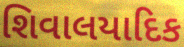
શિવાલયાદિક